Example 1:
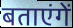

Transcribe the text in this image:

बताएंगें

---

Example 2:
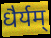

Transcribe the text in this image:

धैर्यम्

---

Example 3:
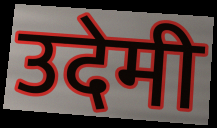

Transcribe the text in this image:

उदेमी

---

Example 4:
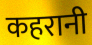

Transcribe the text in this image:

कहरानी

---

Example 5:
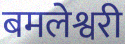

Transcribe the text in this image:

बमलेश्वरी